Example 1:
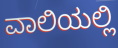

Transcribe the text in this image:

ವಾಲಿಯಲ್ಲಿ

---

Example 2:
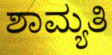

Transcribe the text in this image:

ಶಾಮ್ಯತಿ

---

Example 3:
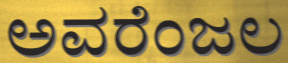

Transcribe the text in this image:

ಅವರೆಂಜಲ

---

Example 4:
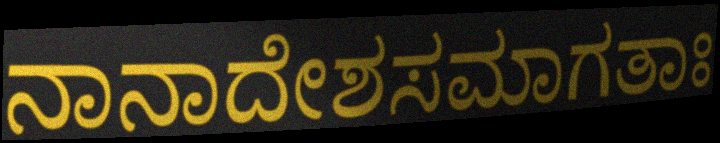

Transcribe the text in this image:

ನಾನಾದೇಶಸಮಾಗತಾಃ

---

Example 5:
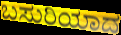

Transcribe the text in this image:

ಬಸುರಿಯಾದ